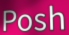
Posh